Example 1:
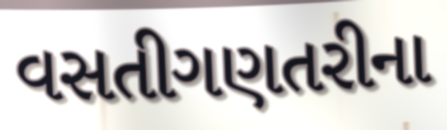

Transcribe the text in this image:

વસતીગણતરીના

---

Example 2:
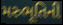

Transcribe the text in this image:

મરુભૂતિની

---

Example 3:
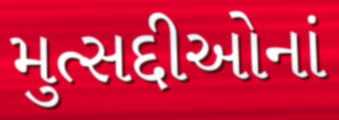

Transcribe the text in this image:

મુત્સદ્દીઓનાં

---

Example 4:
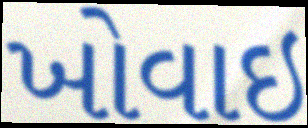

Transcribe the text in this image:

ખોવાઇ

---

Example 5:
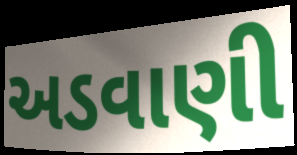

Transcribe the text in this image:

અડવાણી